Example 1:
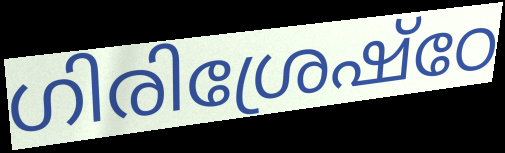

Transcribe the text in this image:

ഗിരിശ്രേഷ്ഠേ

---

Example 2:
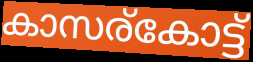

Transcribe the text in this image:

കാസര്കോട്ട്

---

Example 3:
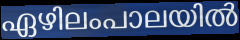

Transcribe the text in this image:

ഏഴിലംപാലയിൽ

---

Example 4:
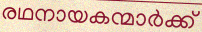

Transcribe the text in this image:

രഥനായകന്മാർക്ക്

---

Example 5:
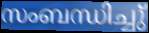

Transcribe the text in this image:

സംബന്ധിച്ചു്